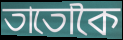
তাতোকৈ